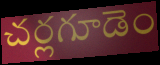
చర్లగూడెం